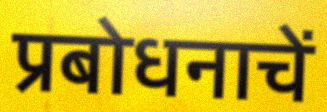
प्रबोधनाचें